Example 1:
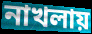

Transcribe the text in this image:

নাখলায়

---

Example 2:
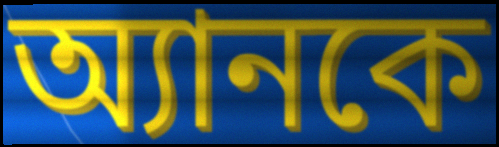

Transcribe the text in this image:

অ্যানকে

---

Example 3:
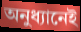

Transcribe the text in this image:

অনুধ্যানেই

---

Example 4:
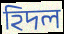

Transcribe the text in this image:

হিদল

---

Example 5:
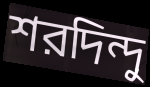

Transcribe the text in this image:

শরদিন্দু